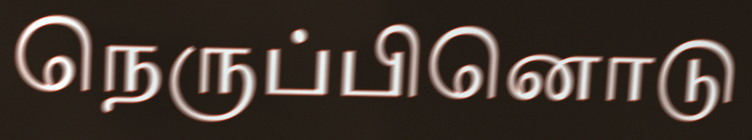
நெருப்பினொடு